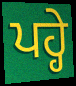
ਪਹ੍ਹੇ